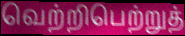
வெற்றிபெற்றுத்